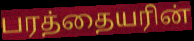
பரத்தையரின்